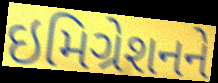
ઇમિગ્રેશનને